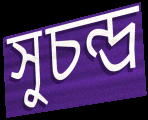
সুচন্দ্র